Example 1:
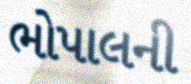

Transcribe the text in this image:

ભોપાલની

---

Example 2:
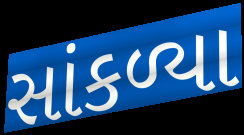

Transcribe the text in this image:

સાંકળ્યા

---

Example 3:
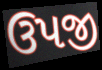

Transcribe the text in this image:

ઉપજી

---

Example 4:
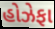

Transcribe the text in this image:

હોઝેફા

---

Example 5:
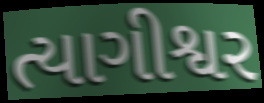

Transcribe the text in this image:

ત્યાગીશ્વર